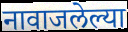
नावाजलेल्या